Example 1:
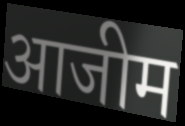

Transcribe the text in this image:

आजीम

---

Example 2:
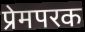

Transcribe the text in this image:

प्रेमपरक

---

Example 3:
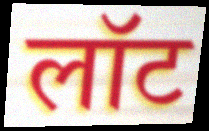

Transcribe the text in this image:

लॉट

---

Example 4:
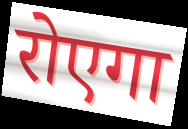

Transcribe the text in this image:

रोएगा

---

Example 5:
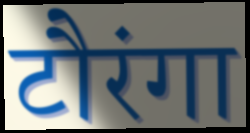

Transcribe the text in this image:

टौरंगा